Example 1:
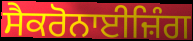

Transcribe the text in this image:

ਸੈਕਰੋਨਾਈਜ਼ਿੰਗ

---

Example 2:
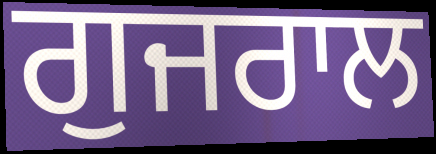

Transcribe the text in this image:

ਗੁਜਰਾਲ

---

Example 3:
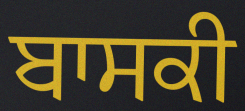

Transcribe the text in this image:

ਬਾਸਕੀ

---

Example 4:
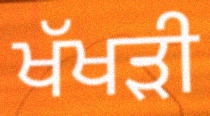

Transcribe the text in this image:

ਖੱਖੜੀ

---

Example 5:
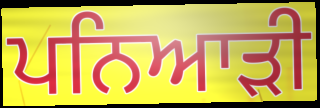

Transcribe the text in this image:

ਪਨਿਆੜੀ